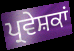
ਪ੍ਰਵੇਸ਼ਕਾਂ